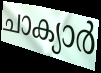
ചാക്യാർ